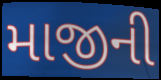
માજીની